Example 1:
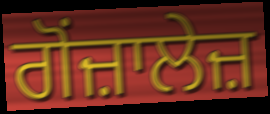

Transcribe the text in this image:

ਗੋਂਜ਼ਾਲੇਜ਼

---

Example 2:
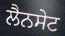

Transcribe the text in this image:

ਲੈਨਸੇਟ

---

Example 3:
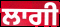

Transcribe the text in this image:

ਲਾਗੀ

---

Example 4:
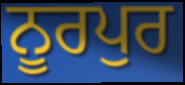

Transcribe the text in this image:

ਨੂਰਪੁਰ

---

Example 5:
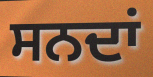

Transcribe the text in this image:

ਸਨਦਾਂ